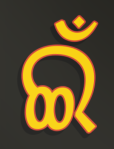
ଇଁ